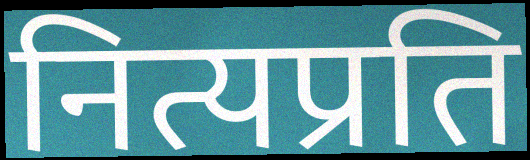
नित्यप्रति